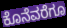
ಕೊನೆವರೆಗೂ